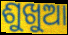
ଶୁଖୁଆ